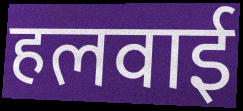
हलवाई